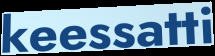
keessatti